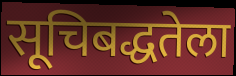
सूचिबद्धतेला